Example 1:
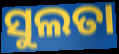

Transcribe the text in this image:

ସୁଲତା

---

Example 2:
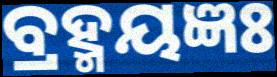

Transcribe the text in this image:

ବ୍ରହ୍ମୟଜ୍ଞଃ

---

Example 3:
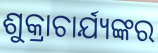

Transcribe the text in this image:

ଶୁକ୍ରାଚାର୍ଯ୍ୟଙ୍କର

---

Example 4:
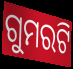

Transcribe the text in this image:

ଗୁମରଟି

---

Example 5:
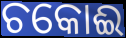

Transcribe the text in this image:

ଚକୋଈ